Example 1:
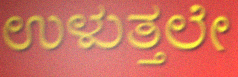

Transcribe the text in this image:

ಉಳುತ್ತಲೇ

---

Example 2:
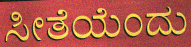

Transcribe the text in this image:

ಸೀತೆಯೆಂದು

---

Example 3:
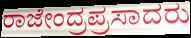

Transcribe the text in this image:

ರಾಜೇಂದ್ರಪ್ರಸಾದರು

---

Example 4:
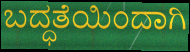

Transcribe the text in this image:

ಬದ್ಧತೆಯಿಂದಾಗಿ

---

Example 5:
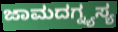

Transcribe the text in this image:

ಜಾಮದಗ್ನ್ಯಸ್ಯ